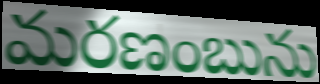
మరణంబును